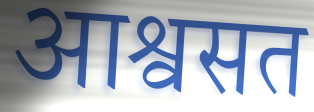
आश्वसत